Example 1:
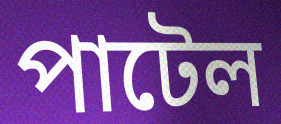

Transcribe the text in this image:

পাটেল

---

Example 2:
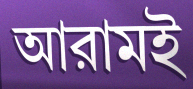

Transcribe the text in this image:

আরামই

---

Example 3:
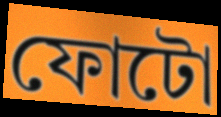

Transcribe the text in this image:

ফোটো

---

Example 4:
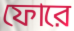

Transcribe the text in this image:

ফোরে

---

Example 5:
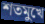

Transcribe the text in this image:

শতমুখে